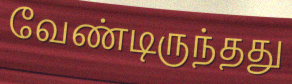
வேண்டிருந்தது